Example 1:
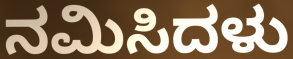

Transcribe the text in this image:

ನಮಿಸಿದಳು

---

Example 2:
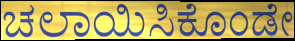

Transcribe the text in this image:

ಚಲಾಯಿಸಿಕೊಂಡೇ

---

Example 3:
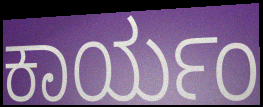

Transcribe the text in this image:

ಕಾರ್ಯಂ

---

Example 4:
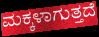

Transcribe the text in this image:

ಮಕ್ಕಳಾಗುತ್ತದೆ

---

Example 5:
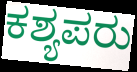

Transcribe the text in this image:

ಕಶ್ಯಪರು